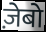
ज़ेबो